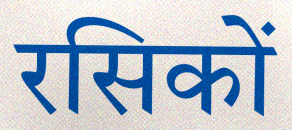
रसिकों